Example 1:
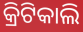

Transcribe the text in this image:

କ୍ରିଟିକାଲି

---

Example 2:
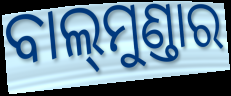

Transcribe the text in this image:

ବାଲ୍‍ମୁଣ୍ଡାର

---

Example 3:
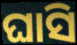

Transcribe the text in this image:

ଘାସି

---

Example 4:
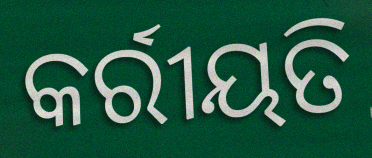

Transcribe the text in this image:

କର୍ରୀୟତି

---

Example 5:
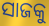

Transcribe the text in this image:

ସାଜକୁ